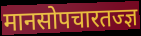
मानसोपचारतज्ज्ञ